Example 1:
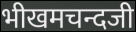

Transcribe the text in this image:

भीखमचन्दजी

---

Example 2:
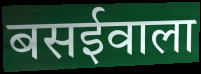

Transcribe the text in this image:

बसईवाला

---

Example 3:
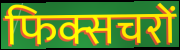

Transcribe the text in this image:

फिक्सचरों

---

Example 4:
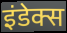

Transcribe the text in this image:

इंडेक्स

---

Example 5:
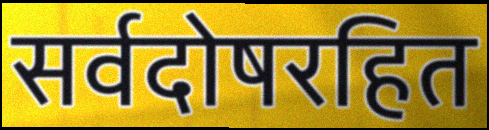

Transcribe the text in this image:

सर्वदोषरहित